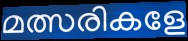
മത്സരികളേ